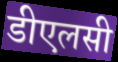
डीएलसी